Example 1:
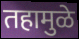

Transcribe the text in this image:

तहामुळे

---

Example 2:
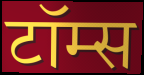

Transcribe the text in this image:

टॉम्स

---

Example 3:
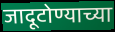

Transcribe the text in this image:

जादूटोण्याच्या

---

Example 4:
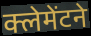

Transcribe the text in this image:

क्लेमेंटने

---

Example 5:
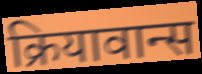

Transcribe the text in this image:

क्रियावान्स